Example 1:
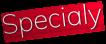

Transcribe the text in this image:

Specialy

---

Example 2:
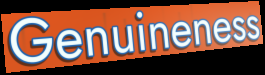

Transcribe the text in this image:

Genuineness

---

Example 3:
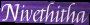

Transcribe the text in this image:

Nivethitha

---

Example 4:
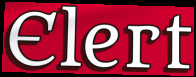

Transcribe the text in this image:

Elert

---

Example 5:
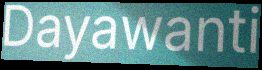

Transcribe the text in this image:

Dayawanti